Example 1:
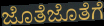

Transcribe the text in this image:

ಜೊತೆಜೊತೆಗೆ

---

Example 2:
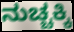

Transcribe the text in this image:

ನುಚ್ಚಕ್ಕಿ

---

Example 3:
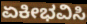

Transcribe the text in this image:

ಏಕೀಭವಿಸಿ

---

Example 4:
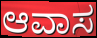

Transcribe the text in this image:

ಆವಾಸ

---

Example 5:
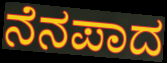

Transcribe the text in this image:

ನೆನಪಾದ